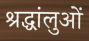
श्रद्धांलुओं